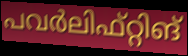
പവർലിഫ്റ്റിങ്